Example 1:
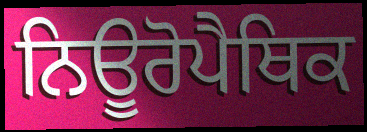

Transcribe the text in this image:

ਨਿਊਰੋਪੈਥਿਕ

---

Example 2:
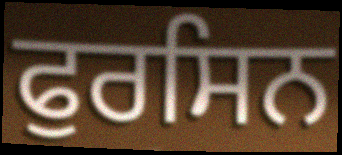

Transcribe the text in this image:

ਫੁਰਸਿਨ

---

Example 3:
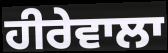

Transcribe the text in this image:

ਹੀਰੇਵਾਲਾ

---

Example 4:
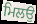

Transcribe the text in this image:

ਮਿਲਉ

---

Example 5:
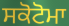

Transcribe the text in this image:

ਸਕੋਟੋਮਾ